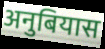
अनुबियास